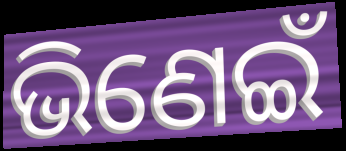
ଭିଣେଇଁ